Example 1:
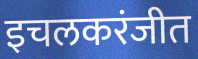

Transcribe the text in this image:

इचलकरंजीत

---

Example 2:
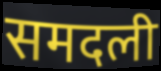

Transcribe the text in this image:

समदली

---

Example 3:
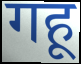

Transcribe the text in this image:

गहू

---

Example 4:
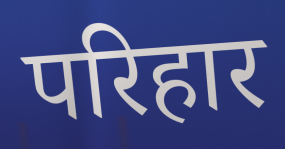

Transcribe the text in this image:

परिहार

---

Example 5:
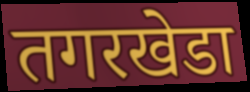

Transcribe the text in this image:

तगरखेडा